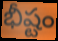
భీష్టం